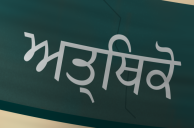
ਅਤ੍ਥਿਕੋ